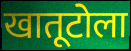
खातूटोला